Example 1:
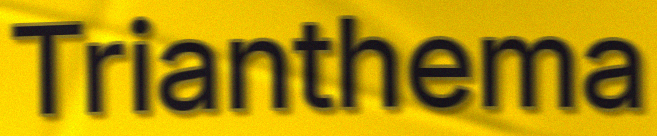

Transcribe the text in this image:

Trianthema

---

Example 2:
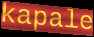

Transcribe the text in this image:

kapale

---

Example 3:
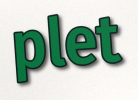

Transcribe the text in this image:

plet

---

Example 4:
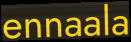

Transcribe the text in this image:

ennaala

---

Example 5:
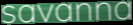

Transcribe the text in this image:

savanna